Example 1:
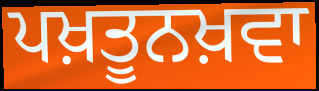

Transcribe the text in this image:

ਪਖ਼ਤੂਨਖ਼ਵਾ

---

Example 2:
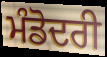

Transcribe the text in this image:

ਮੰਡੋਦਰੀ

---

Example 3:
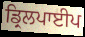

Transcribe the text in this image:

ਡ੍ਰਿਲਪਾਈਪ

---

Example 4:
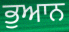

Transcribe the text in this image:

ਭੁਆਨ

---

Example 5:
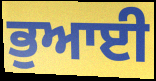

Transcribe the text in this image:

ਭੁਆਈ